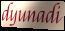
dyunadi